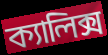
ক্যালিক্স